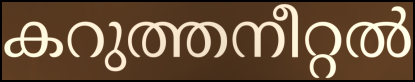
കറുത്തനീറ്റൽ